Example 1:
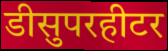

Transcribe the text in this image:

डीसुपरहीटर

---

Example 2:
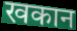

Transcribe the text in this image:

खकान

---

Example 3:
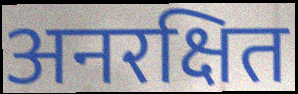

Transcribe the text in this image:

अनरक्षित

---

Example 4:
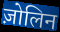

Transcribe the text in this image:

ज़ोलिन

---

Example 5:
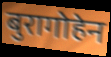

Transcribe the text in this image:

बुरागोहेन